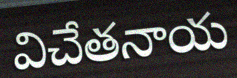
విచేతనాయ